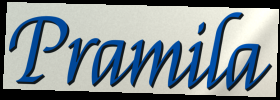
Pramila